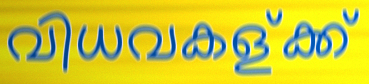
വിധവകള്ക്ക്